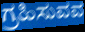
ಗ್ರಹಿಸುವವ